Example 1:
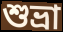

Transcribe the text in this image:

শুভ্রা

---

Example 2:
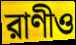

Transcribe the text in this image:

রাণীও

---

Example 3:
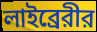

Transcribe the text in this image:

লাইব্রেরীর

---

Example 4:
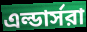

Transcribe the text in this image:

এল্ডার্সরা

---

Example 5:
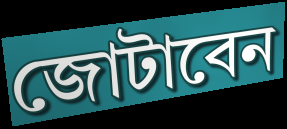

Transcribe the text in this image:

জোটাবেন